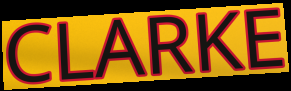
CLARKE